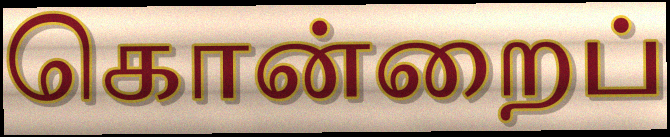
கொன்றைப்